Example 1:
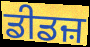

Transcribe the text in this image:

ਡੀਡਜ਼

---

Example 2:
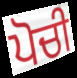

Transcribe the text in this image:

ਪੋਚੀ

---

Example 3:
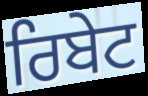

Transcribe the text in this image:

ਰਿਬੇਟ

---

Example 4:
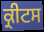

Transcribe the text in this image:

ਕ੍ਰੀਟਸ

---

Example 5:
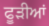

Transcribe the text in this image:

ਫੂੜੀਆਂ